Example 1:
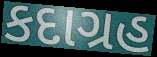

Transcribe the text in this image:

કદાગ્રહ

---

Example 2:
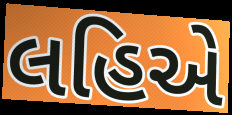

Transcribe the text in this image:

લહિએ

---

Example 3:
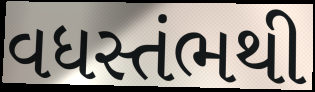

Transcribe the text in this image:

વધસ્તંભથી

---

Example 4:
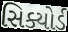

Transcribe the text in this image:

સિક્યોર્ડ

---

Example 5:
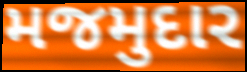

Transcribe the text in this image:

મજમુદાર